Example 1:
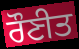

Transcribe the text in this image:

ਰੌਣੀਤ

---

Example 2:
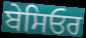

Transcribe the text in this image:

ਬੇਸਿਓਰ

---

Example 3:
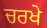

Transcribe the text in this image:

ਚਰਖੇ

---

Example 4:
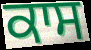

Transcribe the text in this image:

ਕਾਸ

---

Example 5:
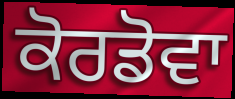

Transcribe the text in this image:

ਕੋਰਡੋਵਾ